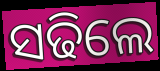
ସଢିଲେ